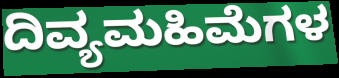
ದಿವ್ಯಮಹಿಮೆಗಳ